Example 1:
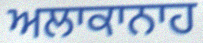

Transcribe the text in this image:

ਅਲਾਕਾਨਾਹ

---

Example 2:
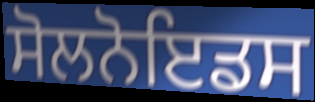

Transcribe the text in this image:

ਸੋਲਨੋਇਡਸ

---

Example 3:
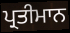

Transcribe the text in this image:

ਪ੍ਰਤੀਮਾਨ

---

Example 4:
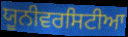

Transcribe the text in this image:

ਯੂਨੀਵਰਸਿਟੀਆ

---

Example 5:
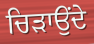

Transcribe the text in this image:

ਚਿੜਾਉਂਦੇ